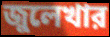
জুলেখার